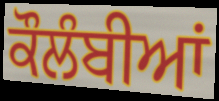
ਕੌਲੰਬੀਆਂ